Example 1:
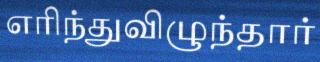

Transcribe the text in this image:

எரிந்துவிழுந்தார்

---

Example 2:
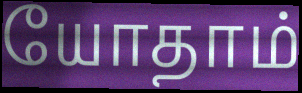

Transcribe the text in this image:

யோதாம்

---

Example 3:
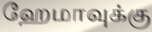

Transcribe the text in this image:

ஹேமாவுக்கு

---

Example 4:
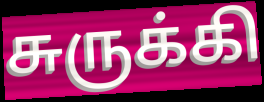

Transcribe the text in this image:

சுருக்கி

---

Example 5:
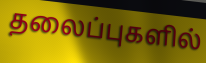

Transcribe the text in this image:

தலைப்புகளில்